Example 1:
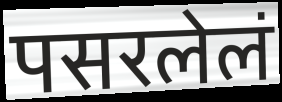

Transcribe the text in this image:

पसरलेलं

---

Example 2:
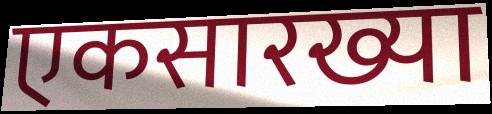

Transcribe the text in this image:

एकसारख्या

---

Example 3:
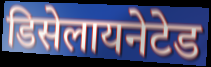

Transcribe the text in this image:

डिसेलायनेटेड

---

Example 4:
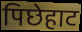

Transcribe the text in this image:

पिछेहाट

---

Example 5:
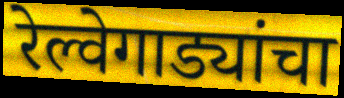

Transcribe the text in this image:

रेल्वेगाड्यांचा